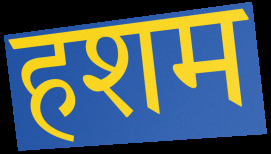
हशम